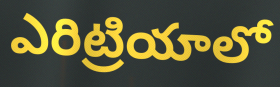
ఎరిట్రియాలో